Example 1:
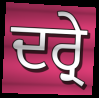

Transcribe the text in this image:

ਦਰ੍ਰੇ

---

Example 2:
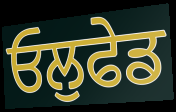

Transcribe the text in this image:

ਓਲੁਫੇਡ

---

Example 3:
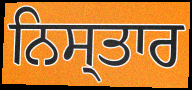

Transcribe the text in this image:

ਨਿਸ੍ਤਾਰ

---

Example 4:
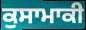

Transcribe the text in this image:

ਕੁਸਾਮਾਕੀ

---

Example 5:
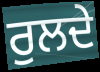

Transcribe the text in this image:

ਰੁਲਦੇ